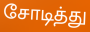
சோடித்து